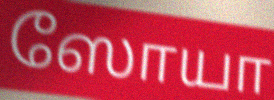
ஸோயா